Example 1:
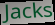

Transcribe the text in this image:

Jacks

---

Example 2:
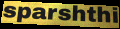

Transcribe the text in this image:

sparshthi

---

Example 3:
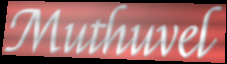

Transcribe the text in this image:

Muthuvel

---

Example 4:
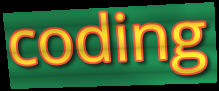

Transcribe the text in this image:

coding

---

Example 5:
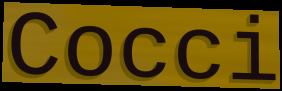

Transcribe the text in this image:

Cocci